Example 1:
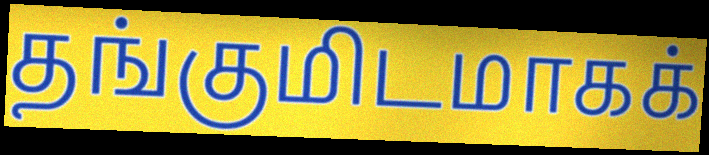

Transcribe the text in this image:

தங்குமிடமாகக்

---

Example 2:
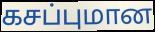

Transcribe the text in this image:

கசப்புமான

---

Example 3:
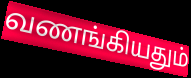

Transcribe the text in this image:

வணங்கியதும்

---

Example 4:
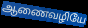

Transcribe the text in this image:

ஆணைவழியே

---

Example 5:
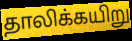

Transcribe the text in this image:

தாலிக்கயிறு